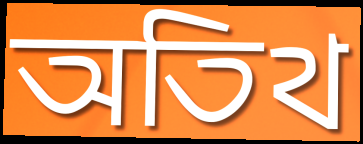
অতিথ